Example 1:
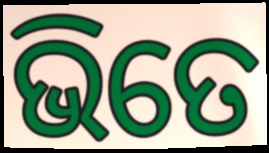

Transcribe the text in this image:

ଭିତେ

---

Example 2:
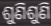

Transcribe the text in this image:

ଶୁଣିଶୁଣି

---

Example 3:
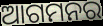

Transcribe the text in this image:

ଆଗମନର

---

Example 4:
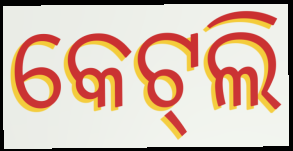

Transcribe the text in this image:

କେଟ୍‍ଲି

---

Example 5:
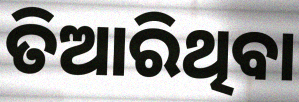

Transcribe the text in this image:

ତିଆରିଥିବା